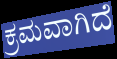
ಕ್ರಮವಾಗಿದೆ